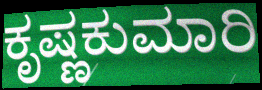
ಕೃಷ್ಣಕುಮಾರಿ